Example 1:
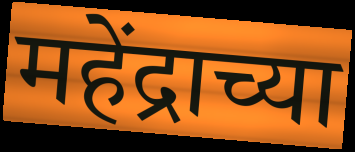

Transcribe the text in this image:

महेंद्राच्या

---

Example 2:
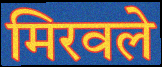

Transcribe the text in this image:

मिरवले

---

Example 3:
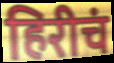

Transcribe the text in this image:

हिरीचं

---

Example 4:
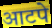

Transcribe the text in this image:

आटपे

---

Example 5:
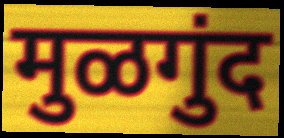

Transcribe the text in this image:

मुळगुंद